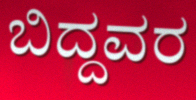
ಬಿದ್ದವರ